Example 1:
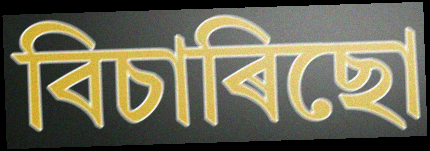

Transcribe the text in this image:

বিচাৰিছো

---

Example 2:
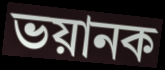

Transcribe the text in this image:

ভয়ানক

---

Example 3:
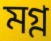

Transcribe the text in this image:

মগ্ন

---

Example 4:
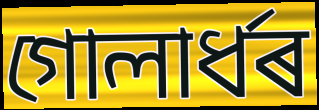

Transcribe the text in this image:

গোলাৰ্ধৰ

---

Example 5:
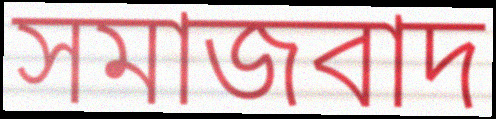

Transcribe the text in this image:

সমাজবাদ